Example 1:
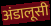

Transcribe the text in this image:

अंडालूसी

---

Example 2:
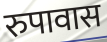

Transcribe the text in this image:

रुपावास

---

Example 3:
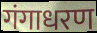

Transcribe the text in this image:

गंगाधरण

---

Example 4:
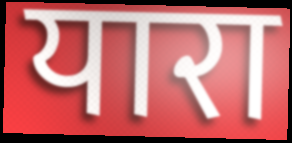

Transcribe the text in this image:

यारा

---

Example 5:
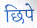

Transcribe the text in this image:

छिपे